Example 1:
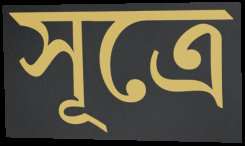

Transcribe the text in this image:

সূত্রে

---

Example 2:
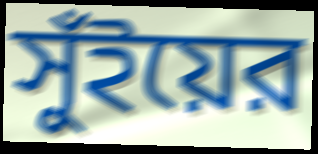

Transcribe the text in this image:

সুঁইয়ের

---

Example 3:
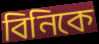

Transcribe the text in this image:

বিনিকে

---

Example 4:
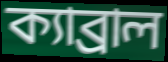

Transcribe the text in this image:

ক্যাব্রাল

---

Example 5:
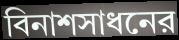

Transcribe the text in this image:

বিনাশসাধনের